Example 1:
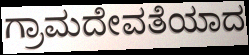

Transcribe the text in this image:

ಗ್ರಾಮದೇವತೆಯಾದ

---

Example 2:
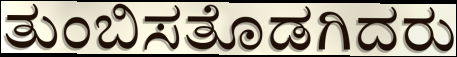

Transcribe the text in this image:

ತುಂಬಿಸತೊಡಗಿದರು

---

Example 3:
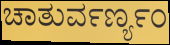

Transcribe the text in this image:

ಚಾತುರ್ವರ್ಣ್ಯಂ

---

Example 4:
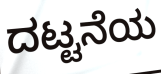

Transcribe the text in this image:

ದಟ್ಟನೆಯ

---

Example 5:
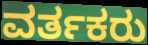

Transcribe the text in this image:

ವರ್ತಕರು